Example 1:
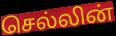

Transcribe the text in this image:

செல்லின்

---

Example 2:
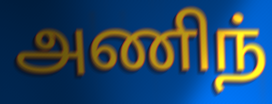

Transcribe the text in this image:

அணிந்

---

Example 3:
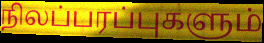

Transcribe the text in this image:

நிலப்பரப்புகளும்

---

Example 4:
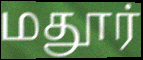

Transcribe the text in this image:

மதூர்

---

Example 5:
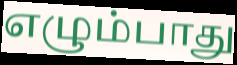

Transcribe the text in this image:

எழும்பாது